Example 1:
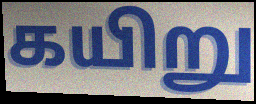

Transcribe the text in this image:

கயிறு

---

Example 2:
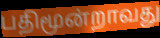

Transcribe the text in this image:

பதிமூன்றாவது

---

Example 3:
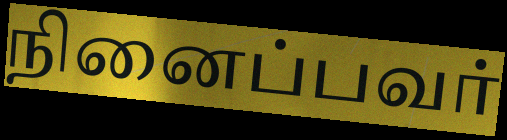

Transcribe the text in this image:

நினைப்பவர்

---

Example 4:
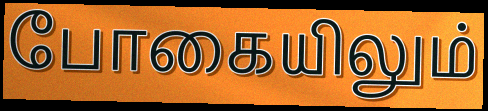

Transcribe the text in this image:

போகையிலும்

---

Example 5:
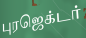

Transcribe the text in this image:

புரஜெக்டர்